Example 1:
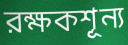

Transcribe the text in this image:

রক্ষকশূন্য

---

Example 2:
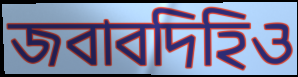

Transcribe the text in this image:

জবাবদিহিও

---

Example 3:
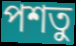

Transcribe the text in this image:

পশতু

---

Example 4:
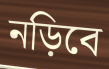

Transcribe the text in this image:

নড়িবে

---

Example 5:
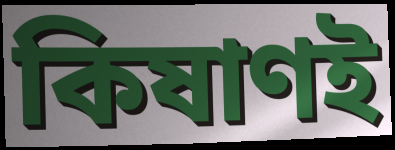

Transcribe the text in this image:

কিষাণই